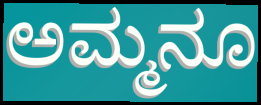
ಅಮ್ಮನೂ